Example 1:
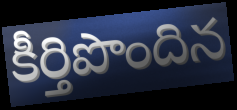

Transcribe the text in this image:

కీర్తిపొందిన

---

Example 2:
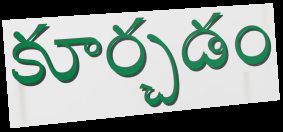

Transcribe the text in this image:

కూర్చడం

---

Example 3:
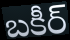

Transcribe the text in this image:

బకీర్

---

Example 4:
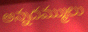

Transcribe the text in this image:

అన్నదమ్ములు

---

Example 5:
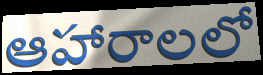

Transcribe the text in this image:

ఆహారాలలో